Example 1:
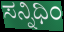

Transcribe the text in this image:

ಸನ್ನಿಧಿಂ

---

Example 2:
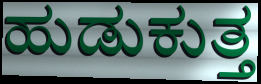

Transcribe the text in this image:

ಹುಡುಕುತ್ತ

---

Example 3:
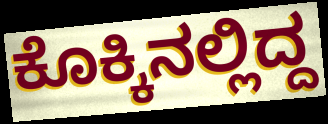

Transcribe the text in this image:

ಕೊಕ್ಕಿನಲ್ಲಿದ್ದ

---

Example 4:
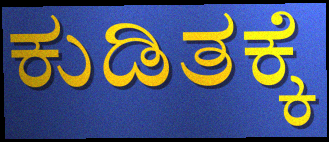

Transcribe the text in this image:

ಕುಡಿತಕ್ಕೆ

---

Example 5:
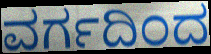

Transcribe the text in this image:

ವರ್ಗದಿಂದ